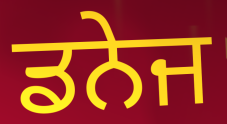
ਡਨੇਜ